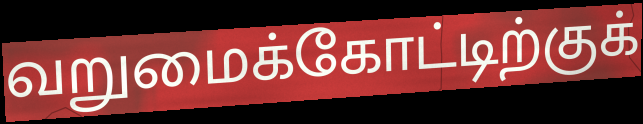
வறுமைக்கோட்டிற்குக்